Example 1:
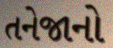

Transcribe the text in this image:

તનેજાનો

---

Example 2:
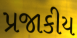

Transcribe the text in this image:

પ્રજાકીય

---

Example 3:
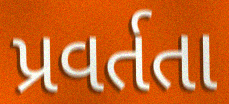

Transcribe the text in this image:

પ્રવર્તતા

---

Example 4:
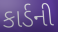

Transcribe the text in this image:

કાર્ડની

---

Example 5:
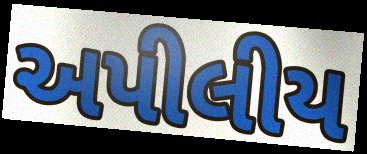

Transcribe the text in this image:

અપીલીય